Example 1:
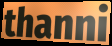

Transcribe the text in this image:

thanni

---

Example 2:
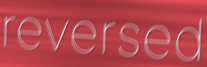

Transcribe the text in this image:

reversed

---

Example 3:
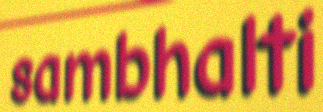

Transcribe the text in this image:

sambhalti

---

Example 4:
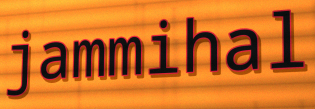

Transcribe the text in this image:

jammihal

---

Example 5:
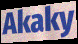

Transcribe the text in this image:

Akaky